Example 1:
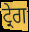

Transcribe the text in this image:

ਟ੍ਰੇਗ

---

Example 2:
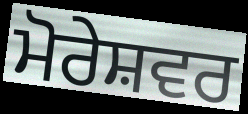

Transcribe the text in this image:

ਮੋਰੇਸ਼ਵਰ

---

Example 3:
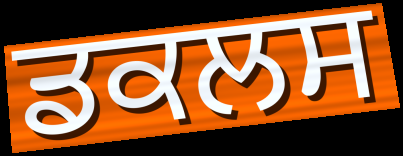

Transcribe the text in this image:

ਡਕਲਸ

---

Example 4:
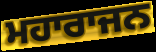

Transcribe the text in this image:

ਮਹਾਰਾਜਨ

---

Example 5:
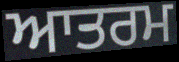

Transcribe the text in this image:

ਆਤਰਮ